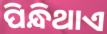
ପିନ୍ଧିଥାଏ